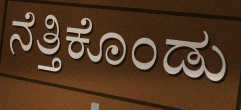
ನೆತ್ತಿಕೊಂಡು